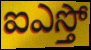
ఐఎస్తో